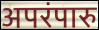
अपरंपारु